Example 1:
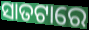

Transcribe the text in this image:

ସାତଟାରେ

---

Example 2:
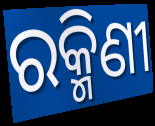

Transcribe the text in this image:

ରକ୍ମିଣୀ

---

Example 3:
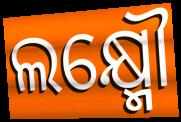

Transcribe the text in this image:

ଲକ୍ଷ୍ମୌ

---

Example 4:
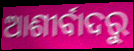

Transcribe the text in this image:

ଆଶୀର୍ବାଦରୁ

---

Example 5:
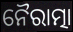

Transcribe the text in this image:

ନୈରାତ୍ମା